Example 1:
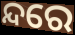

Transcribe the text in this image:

ନ୍ଦରେ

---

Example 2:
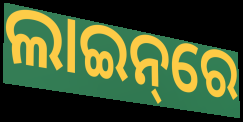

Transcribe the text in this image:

ଲାଇନ୍‌ରେ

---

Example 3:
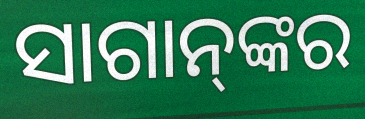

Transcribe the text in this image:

ସାଗାନ୍‌ଙ୍କର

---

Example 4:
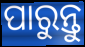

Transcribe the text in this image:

ପାରୁନ୍ତୁ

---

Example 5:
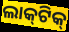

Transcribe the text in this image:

ଲାକ୍‌ଟିକ୍